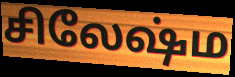
சிலேஷ்ம